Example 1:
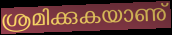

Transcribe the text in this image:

ശ്രമിക്കുകയാണു്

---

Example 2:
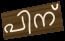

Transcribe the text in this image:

പിന്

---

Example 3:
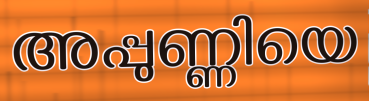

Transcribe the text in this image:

അപ്പുണ്ണിയെ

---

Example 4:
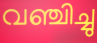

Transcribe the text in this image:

വഞ്ചിച്ചു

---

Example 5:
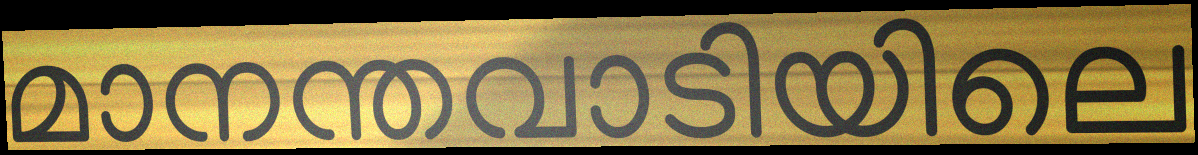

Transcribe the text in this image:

മാനന്തവാടിയിലെ